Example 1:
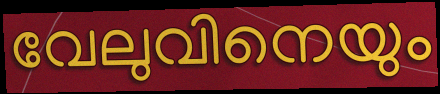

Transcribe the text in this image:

വേലുവിനെയും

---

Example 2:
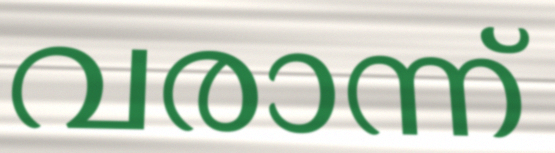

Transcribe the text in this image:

വരാന്ന്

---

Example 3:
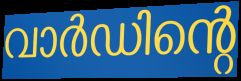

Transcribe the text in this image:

വാർഡിന്റെ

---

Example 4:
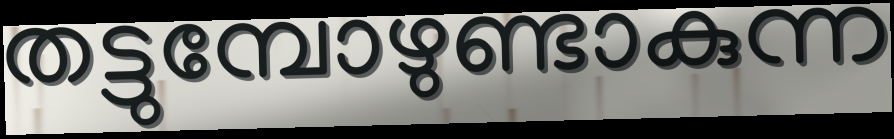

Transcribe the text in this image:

തട്ടുമ്പോഴുണ്ടാകുന്ന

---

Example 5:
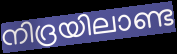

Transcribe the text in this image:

നിദ്രയിലാണ്ട